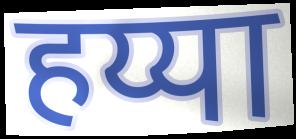
हय्या